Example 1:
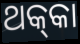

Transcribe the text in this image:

ଥକ୍‌କା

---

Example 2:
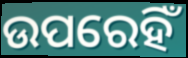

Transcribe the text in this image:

ଉପରେହିଁ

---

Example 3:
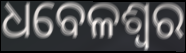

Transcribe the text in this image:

ଧବେଳଶ୍ୱର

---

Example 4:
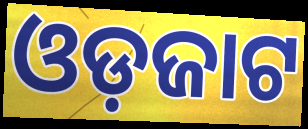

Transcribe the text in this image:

ଓଡ଼ଜାଟ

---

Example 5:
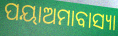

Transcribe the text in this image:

ପୟାଅମାବାସ୍ୟା